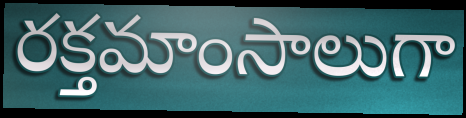
రక్తమాంసాలుగా